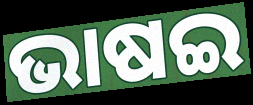
ଭାଷଇ